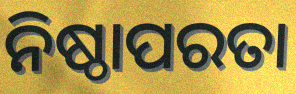
ନିଷ୍ଠାପରତା